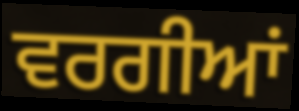
ਵਰਗੀਆਂ